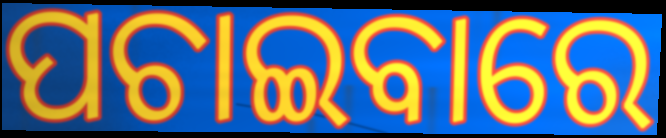
ପଚାଇବାରେ